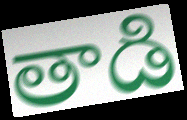
తాడి